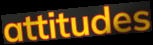
attitudes